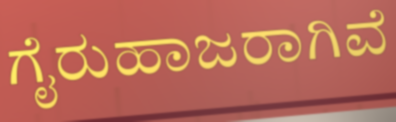
ಗೈರುಹಾಜರಾಗಿವೆ